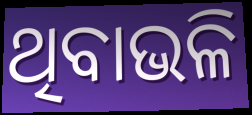
ଥିବାଭଳି